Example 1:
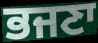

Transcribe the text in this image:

ਭਜਣਾ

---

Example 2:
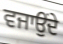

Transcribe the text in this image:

ਵਜਾਉਂਦੇ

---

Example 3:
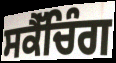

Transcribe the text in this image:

ਸਕੈੱਚਿੰਗ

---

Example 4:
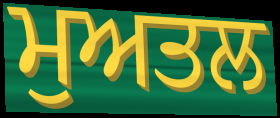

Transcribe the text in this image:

ਮੁਅਤਲ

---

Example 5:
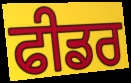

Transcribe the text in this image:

ਫੀਡਰ